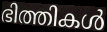
ഭിത്തികൾ